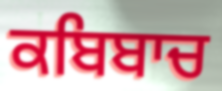
ਕਬਿਬਾਚ